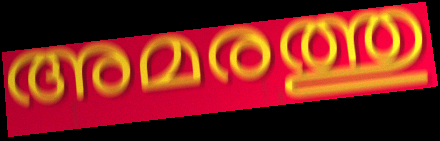
അമരത്തു